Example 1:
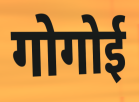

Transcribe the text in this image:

गोगोई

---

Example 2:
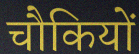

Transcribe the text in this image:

चौकियों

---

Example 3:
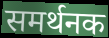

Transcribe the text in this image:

समर्थनक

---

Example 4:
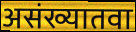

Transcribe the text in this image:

असंख्यातवा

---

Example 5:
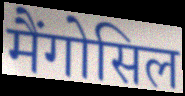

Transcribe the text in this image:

मैंगोसिल